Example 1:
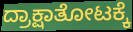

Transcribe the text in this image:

ದ್ರಾಕ್ಷಾತೋಟಕ್ಕೆ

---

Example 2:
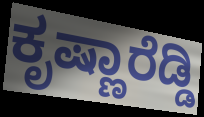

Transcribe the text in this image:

ಕೃಷ್ಣಾರೆಡ್ಡಿ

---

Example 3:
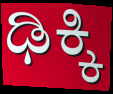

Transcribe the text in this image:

ಢಿಕ್ಕಿ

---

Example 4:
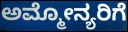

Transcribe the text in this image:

ಅಮ್ಮೋನ್ಯರಿಗೆ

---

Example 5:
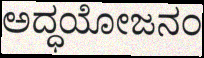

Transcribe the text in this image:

ಅದ್ಧಯೋಜನಂ